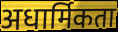
अधार्मिकता